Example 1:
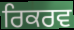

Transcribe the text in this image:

ਰਿਕਰਵ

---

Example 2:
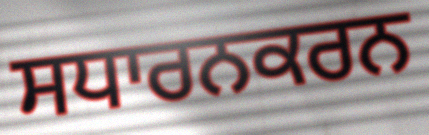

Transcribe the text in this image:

ਸਧਾਰਨਕਰਨ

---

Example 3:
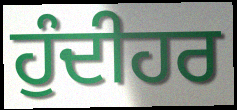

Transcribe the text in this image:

ਹੁੰਦੀਹਰ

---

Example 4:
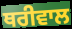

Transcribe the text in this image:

ਥਰੀਵਾਲ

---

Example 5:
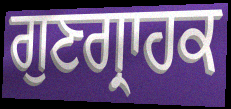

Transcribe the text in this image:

ਗੁਣਗ੍ਰਾਹਕ